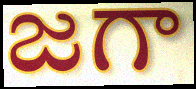
జగా